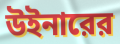
উইনারের